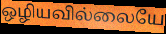
ஒழியவில்லையே